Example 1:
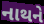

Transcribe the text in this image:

નાથને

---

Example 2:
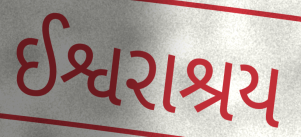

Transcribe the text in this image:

ઈશ્વરાશ્રય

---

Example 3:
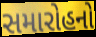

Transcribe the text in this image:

સમારોહનો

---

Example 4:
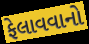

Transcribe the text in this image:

ફેલાવવાનો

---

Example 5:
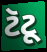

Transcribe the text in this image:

ટૅટૂ